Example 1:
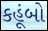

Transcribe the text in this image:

કહૂંબો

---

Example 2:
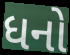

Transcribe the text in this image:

ધનો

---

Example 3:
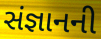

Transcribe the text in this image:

સંજ્ઞાનની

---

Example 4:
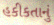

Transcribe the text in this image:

હકીકતાનું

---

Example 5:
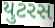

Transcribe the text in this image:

યુટરસ